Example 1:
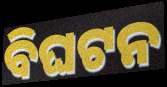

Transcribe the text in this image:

ବିଘଟନ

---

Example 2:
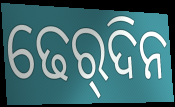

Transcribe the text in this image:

ଢେର୍‌ଦିନ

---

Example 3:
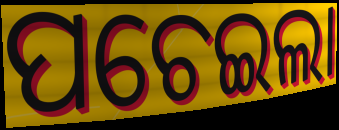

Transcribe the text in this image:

ପଚେଇଲା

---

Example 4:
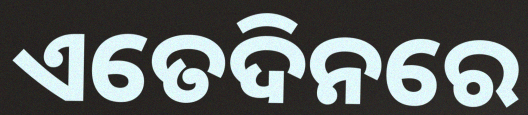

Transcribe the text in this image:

ଏତେଦିନରେ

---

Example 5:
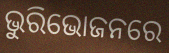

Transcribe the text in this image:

ଭୁରିଭୋଜନରେ